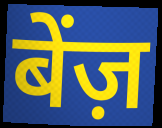
बेंज़